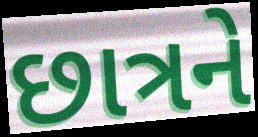
છાત્રને